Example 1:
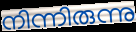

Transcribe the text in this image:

നിന്നിരുന്നു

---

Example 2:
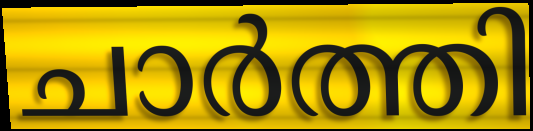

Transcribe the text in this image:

ചാർത്തി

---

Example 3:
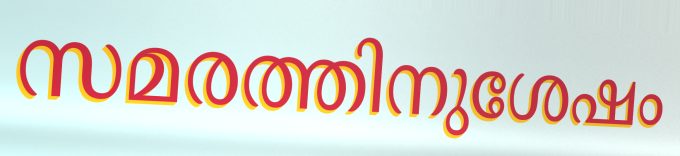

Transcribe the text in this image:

സമരത്തിനുശേഷം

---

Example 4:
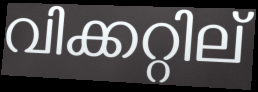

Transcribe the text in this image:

വിക്കറ്റില്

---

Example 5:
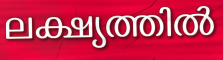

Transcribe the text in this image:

ലക്ഷ്യത്തിൽ